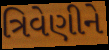
ત્રિવેણીને